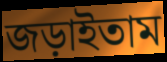
জড়াইতাম